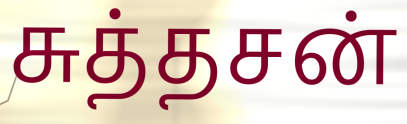
சுத்தசன்